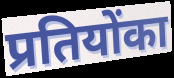
प्रतियोंका